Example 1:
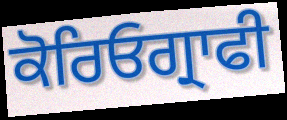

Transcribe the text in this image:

ਕੋਰਿਓਗ੍ਰਾਫੀ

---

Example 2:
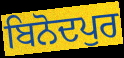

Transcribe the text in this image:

ਬਿਨੋਦਪੁਰ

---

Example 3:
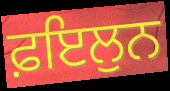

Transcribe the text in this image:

ਫ਼ਇਲੁਨ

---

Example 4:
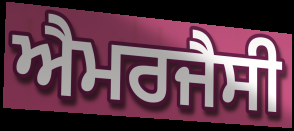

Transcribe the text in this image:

ਐਮਰਜੈਸੀ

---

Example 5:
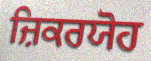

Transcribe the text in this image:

ਜ਼ਿਕਰਯੋਹ